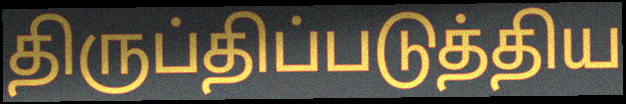
திருப்திப்படுத்திய